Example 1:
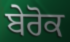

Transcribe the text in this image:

ਬੇਰੋਕ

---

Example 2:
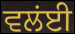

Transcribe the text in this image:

ਵਲਂਈ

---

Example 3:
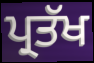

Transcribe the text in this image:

ਪ੍ਰਤੱਖ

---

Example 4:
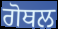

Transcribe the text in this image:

ਗੋਥਲ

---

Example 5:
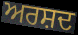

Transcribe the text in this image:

ਅਰਸ਼ਦ